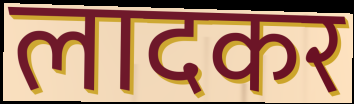
लादकर